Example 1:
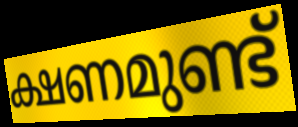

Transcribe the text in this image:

ക്ഷണമുണ്ട്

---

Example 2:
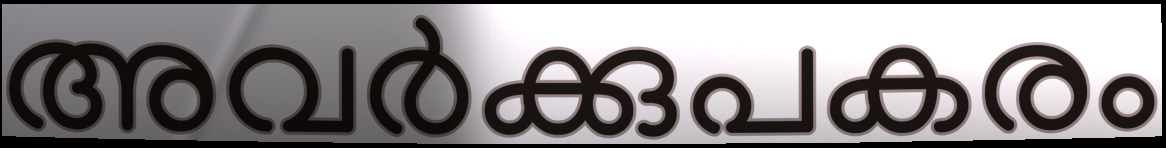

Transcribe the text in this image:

അവർക്കുപകരം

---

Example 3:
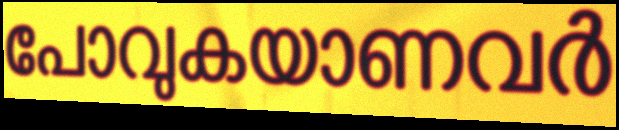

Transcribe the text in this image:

പോവുകയാണവർ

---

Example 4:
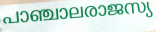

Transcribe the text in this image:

പാഞ്ചാലരാജസ്യ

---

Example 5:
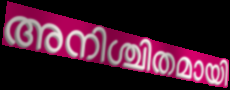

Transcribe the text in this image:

അനിശ്ചിതമായി